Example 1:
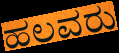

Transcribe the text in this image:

ಹಲವರು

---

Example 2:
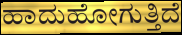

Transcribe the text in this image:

ಹಾದುಹೋಗುತ್ತಿದೆ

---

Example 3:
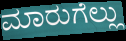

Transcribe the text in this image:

ಮಾರುಗೆಲ್ಲು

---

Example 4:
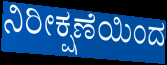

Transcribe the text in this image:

ನಿರೀಕ್ಷಣೆಯಿಂದ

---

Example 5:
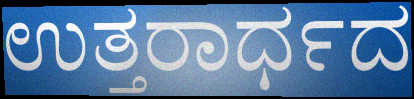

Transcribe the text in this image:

ಉತ್ತರಾರ್ಧದ